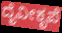
ದೈವೀಕೃಪೆ